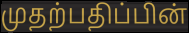
முதற்பதிப்பின்